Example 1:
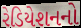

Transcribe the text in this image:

રેડિયેશનનો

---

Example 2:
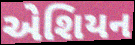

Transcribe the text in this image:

એશિયન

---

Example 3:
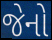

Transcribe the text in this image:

જેનો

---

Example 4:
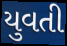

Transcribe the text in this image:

યુવતી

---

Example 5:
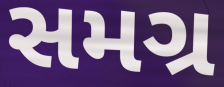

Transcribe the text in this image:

સમગ્ર